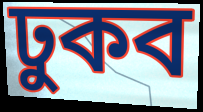
ঢুকব